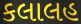
કલાલહ